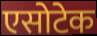
एसोटेक